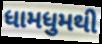
ધામધુમથી